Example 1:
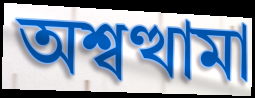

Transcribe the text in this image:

অশ্বত্থামা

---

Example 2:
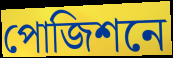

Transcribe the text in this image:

পোজিশনে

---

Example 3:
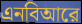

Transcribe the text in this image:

এনবিআরে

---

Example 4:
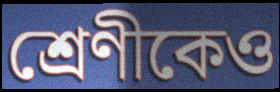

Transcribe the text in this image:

শ্রেণীকেও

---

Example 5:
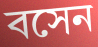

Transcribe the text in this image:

বসেন